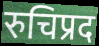
रुचिप्रद